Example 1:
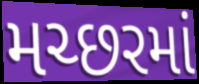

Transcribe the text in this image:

મચ્છરમાં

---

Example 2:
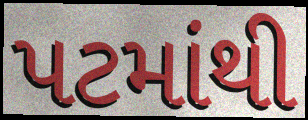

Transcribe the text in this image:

પટમાંથી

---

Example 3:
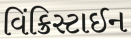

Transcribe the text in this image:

વિંક્રિસ્ટાઈન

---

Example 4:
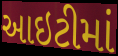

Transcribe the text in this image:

આઇટીમાં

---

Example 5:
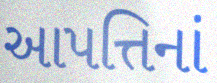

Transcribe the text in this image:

આપત્તિનાં